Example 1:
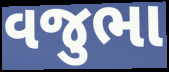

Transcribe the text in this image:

વજુભા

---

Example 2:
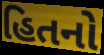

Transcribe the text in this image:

હિતનો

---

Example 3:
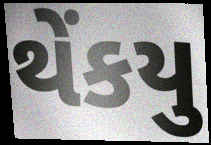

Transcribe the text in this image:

થેંકયુ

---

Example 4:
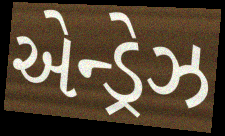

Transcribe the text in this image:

એન્ડ્રેઝ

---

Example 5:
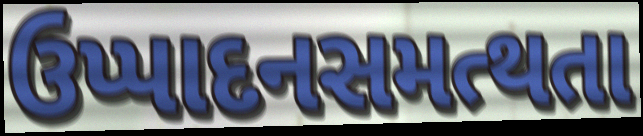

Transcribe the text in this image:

ઉપ્પાદનસમત્થતા